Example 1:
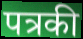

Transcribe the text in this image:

पत्रकी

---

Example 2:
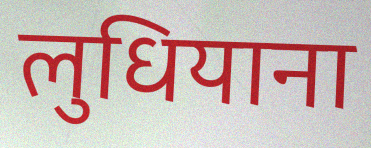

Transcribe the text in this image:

लुधियाना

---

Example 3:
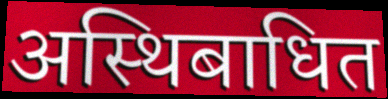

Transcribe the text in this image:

अस्थिबाधित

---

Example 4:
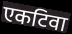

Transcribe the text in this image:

एकटिवा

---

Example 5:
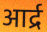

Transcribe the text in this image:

आर्द्र